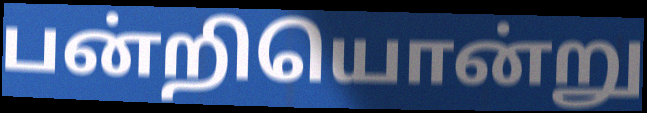
பன்றியொன்று